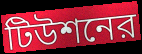
টিউশনের